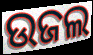
ଉଜଲ